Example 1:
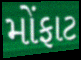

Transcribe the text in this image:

મોંફાટ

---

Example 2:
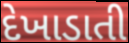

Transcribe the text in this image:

દેખાડાતી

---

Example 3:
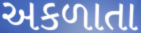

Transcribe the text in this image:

અકળાતા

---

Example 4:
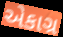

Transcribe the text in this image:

એકાગ્ર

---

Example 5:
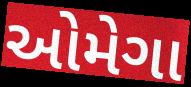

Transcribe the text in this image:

ઓમેગા